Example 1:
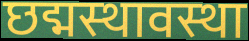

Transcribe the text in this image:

छद्मस्थावस्था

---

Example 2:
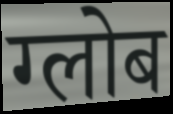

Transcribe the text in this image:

ग्लोब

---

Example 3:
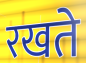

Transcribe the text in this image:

रखते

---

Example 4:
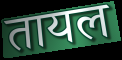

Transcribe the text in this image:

तायल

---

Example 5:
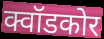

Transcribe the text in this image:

क्वॉडकोर